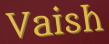
Vaish